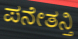
ಪನೇತನ್ತಿ